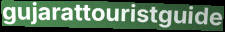
gujarattouristguide